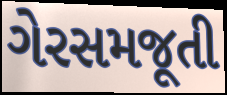
ગેરસમજૂતી